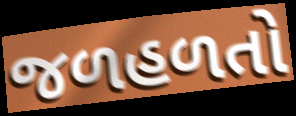
જળહળતો